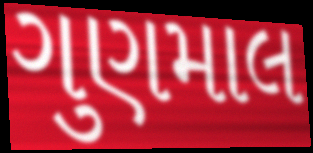
ગુણમાલ